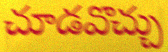
చూడవొచ్చు